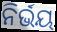
ନିର୍ଭୟ